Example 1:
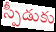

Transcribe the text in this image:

స్పీడుకు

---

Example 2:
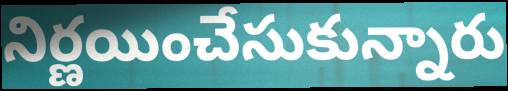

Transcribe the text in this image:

నిర్ణయించేసుకున్నారు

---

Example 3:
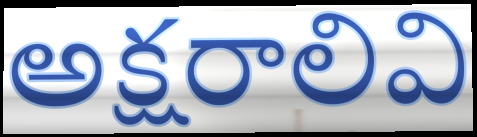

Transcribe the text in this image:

అక్షరాలివి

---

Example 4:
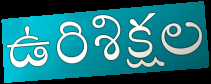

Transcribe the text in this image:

ఉరిశిక్షల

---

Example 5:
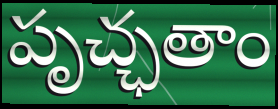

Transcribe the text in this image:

పృచ్ఛతాం